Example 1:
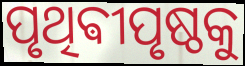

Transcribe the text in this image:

ପୃଥିଵୀପୃଷ୍ଠକୁ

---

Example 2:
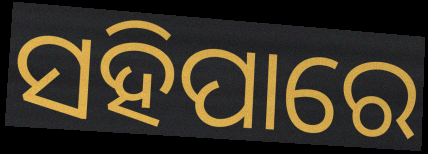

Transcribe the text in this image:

ସହିପାରେ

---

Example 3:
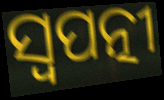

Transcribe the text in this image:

ସ୍ୱପତ୍ନୀ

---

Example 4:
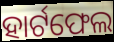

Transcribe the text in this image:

ହାର୍ଟଫେଲ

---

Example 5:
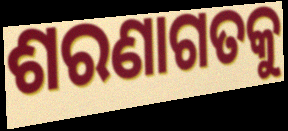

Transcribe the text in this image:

ଶରଣାଗତକୁ